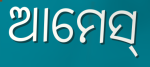
ଆମେସ୍